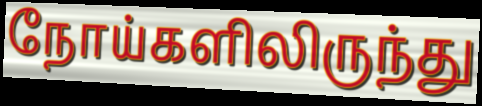
நோய்களிலிருந்து